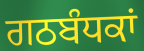
ਗਠਬੰਧਕਾਂ